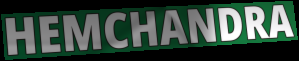
HEMCHANDRA